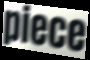
piece